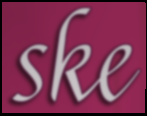
ske